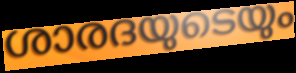
ശാരദയുടെയും